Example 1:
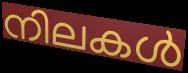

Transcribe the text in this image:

നിലകൾ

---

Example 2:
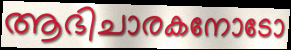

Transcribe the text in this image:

ആഭിചാരകനോടോ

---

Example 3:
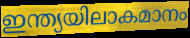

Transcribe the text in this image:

ഇന്ത്യയിലാകമാനം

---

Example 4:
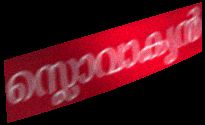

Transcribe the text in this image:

സ്ലൊവാക്യൻ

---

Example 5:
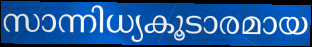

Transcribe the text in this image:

സാന്നിധ്യകൂടാരമായ